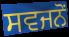
ਸਵਜਨੋਂ